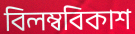
বিলম্ববিকাশ